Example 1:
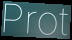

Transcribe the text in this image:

Prot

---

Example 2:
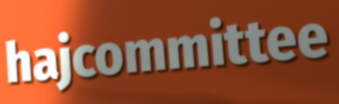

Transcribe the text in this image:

hajcommittee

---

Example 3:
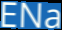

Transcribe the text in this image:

ENa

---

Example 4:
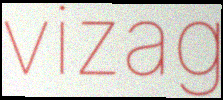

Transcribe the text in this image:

vizag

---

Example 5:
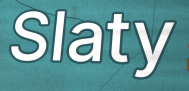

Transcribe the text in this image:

Slaty